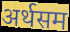
अर्थसम